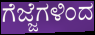
ಗೆಜ್ಜೆಗಳಿಂದ